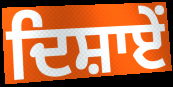
ਦਿਸ਼ਾਏਂ